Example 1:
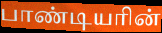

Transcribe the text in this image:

பாண்டியரின்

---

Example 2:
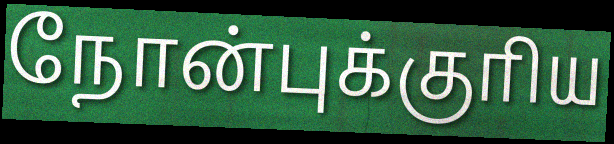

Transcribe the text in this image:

நோன்புக்குரிய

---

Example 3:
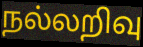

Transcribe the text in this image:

நல்லறிவு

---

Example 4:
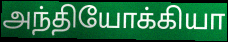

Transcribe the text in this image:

அந்தியோக்கியா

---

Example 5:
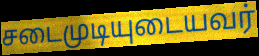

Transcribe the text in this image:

சடைமுடியுடையவர்